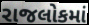
રાજલોકમાં